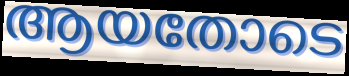
ആയതോടെ